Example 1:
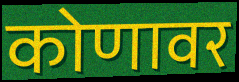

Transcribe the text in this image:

कोणावर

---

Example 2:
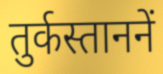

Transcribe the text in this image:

तुर्कस्ताननें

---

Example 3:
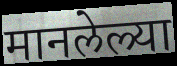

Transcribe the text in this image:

मानलेल्या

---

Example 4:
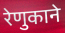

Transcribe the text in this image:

रेणुकाने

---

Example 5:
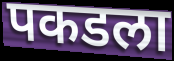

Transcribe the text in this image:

पकडला